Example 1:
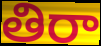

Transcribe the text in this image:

తిరా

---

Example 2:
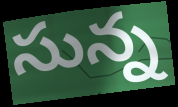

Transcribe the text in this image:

సున్న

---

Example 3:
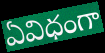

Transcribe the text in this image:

ఏవిధంగా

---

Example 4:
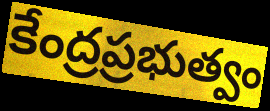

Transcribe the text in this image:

కేంద్రప్రభుత్వం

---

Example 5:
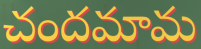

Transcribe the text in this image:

చందమామ